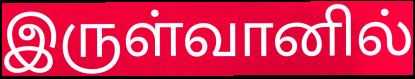
இருள்வானில்